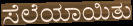
ಸೆಲೆಯಾಯಿತು